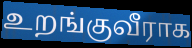
உறங்குவீராக